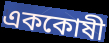
এককোষী